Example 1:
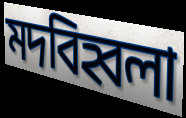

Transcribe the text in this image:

মদবিহ্বলা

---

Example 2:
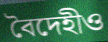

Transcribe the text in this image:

বৈদেহীও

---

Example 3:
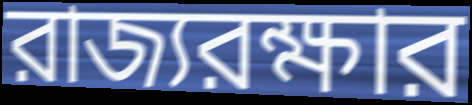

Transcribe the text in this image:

রাজ্যরক্ষার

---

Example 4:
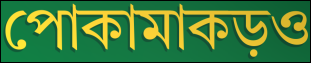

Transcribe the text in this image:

পোকামাকড়ও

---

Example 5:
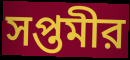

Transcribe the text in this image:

সপ্তমীর